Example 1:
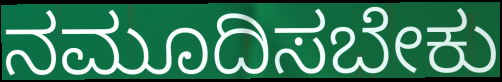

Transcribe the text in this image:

ನಮೂದಿಸಬೇಕು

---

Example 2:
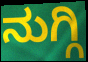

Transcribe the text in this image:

ನುಗ್ಗಿ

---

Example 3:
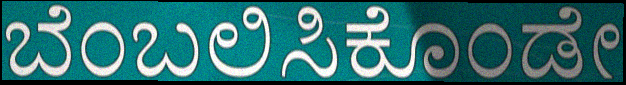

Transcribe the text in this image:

ಬೆಂಬಲಿಸಿಕೊಂಡೇ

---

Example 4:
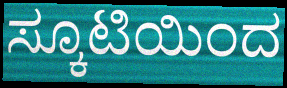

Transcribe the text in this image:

ಸ್ಕೂಟಿಯಿಂದ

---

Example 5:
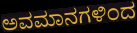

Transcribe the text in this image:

ಅವಮಾನಗಳಿಂದ